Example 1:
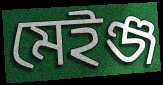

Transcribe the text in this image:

মেইঞ্জ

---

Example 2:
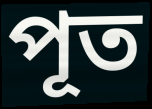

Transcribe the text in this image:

পূত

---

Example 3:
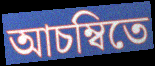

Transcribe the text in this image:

আচম্বিতে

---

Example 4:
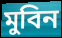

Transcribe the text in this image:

মুবিন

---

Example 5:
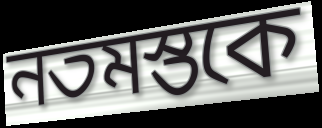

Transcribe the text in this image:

নতমস্তকে